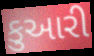
કુઆરી